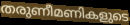
തരുണീമണികളുടെ